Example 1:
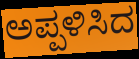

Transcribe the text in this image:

ಅಪ್ಪಳಿಸಿದ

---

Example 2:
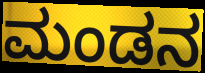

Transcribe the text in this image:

ಮಂಡನ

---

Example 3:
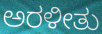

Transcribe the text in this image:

ಅರಳೀತು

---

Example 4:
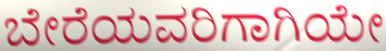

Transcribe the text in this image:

ಬೇರೆಯವರಿಗಾಗಿಯೇ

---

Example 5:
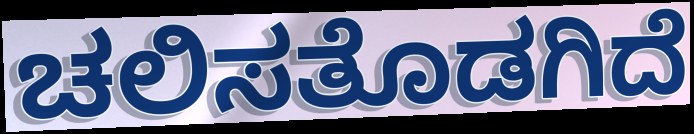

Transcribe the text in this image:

ಚಲಿಸತೊಡಗಿದೆ